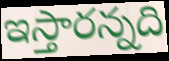
ఇస్తారన్నది